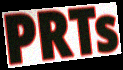
PRTs